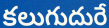
కలుగుదురే